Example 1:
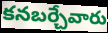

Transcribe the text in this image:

కనబర్చేవారు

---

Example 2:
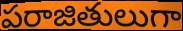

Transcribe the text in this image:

పరాజితులుగా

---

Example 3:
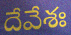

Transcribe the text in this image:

దేవేశః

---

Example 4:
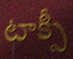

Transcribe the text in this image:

టాక్సీ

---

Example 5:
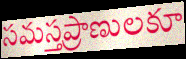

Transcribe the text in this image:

సమస్తప్రాణులకూ